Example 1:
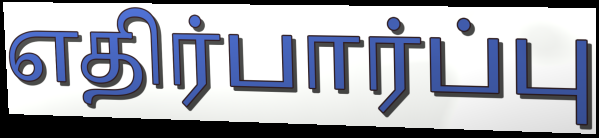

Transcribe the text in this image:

எதிர்பார்ப்பு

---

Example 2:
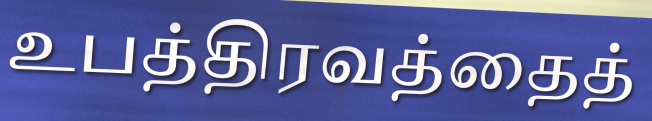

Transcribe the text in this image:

உபத்திரவத்தைத்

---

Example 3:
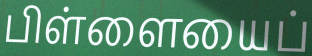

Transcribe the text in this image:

பிள்ளையைப்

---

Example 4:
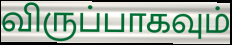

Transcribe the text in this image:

விருப்பாகவும்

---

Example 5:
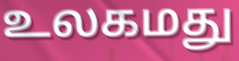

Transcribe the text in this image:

உலகமது